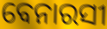
ବେନାରସୀ